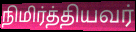
நிமிர்த்தியவர்